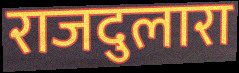
राजदुलारा